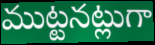
ముట్టనట్లుగా